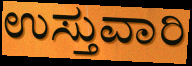
ಉಸ್ತುವಾರಿ